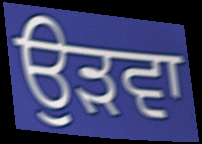
ਉੜਵਾ